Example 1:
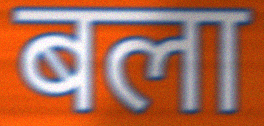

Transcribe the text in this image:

बला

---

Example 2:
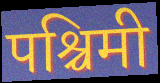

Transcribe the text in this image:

पश्चिमी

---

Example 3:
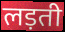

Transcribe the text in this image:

लड़ती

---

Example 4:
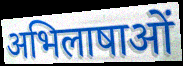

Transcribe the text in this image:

अभिलाषाओं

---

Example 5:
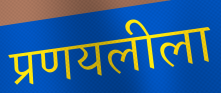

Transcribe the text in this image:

प्रणयलीला